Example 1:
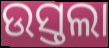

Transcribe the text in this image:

ଉସ୍ତଲା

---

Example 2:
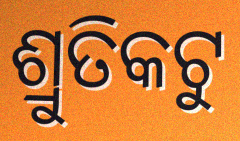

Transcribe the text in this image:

ଶ୍ରୁତିକଟୁ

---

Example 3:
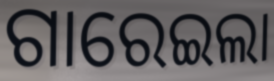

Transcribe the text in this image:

ଗାରେଇଲା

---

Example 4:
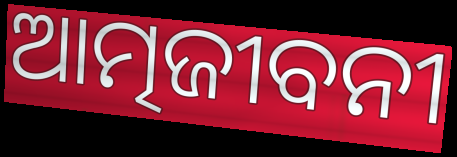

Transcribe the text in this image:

ଆତ୍ମଜୀବନୀ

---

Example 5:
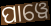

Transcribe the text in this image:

ପାୱେ